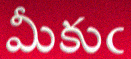
మీకుఁ